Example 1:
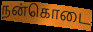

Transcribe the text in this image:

நன்கொடை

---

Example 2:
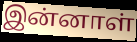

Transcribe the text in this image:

இன்னாள்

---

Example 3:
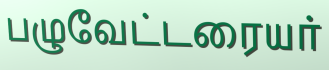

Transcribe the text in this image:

பழுவேட்டரையர்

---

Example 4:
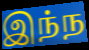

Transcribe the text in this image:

இந்ந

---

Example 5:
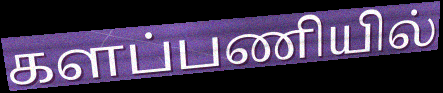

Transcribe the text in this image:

களப்பணியில்